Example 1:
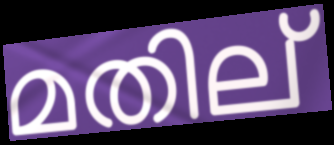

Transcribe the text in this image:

മതില്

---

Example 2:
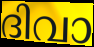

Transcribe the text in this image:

ദിവാ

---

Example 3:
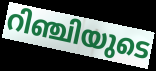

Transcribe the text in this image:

റിഞ്ചിയുടെ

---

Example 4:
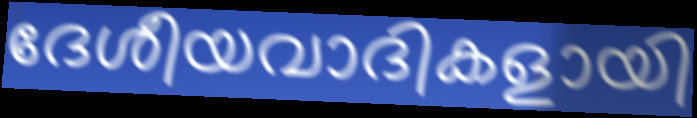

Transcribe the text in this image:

ദേശീയവാദികളായി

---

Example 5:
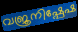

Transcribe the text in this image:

വജ്രനിഷ്പേഷ